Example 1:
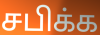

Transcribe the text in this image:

சபிக்க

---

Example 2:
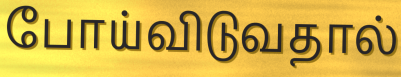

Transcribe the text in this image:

போய்விடுவதால்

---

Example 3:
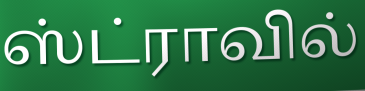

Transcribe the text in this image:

ஸ்ட்ராவில்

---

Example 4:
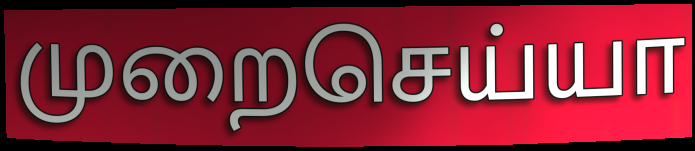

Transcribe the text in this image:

முறைசெய்யா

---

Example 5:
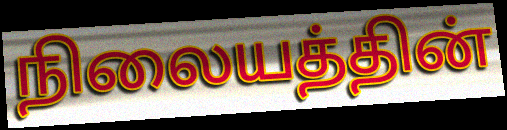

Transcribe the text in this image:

நிலையத்தின்